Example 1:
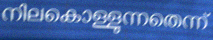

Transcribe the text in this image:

നിലകൊള്ളുന്നതെന്ന്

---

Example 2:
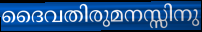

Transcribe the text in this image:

ദൈവതിരുമനസ്സിനു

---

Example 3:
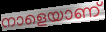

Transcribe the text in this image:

നാളെയാണ്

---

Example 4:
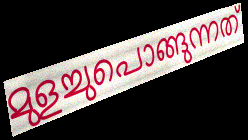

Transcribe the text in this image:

മുളച്ചുപൊങ്ങുന്നത്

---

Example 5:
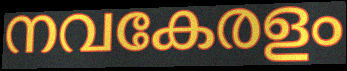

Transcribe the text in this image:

നവകേരളം